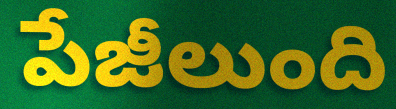
పేజీలుంది